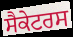
ਸੈਕੇਟਰਸ